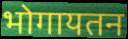
भोगायतन